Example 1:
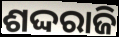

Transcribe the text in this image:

ଶଦ୍ଦରାଜି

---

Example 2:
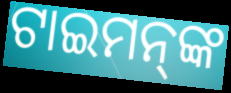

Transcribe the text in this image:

ଟାଇମନ୍‌ଙ୍କ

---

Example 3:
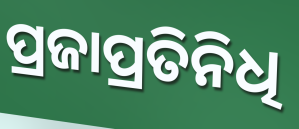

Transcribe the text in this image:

ପ୍ରଜାପ୍ରତିନିଧି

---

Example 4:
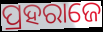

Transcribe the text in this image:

ପ୍ରହରାଜେ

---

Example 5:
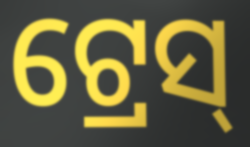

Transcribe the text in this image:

ଟ୍ରେସ୍